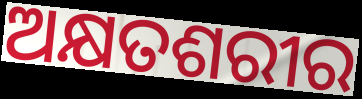
ଅକ୍ଷତଶରୀର